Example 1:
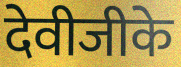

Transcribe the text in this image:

देवीजीके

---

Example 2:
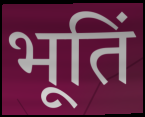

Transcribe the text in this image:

भूतिं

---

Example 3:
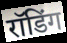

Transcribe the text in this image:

रॉडिंग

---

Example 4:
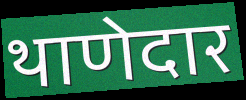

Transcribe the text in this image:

थाणेदार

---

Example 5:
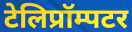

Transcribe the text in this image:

टेलिप्रॉम्पटर